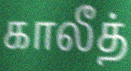
காலீத்